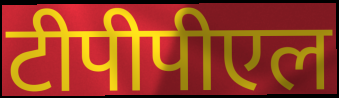
टीपीपीएल